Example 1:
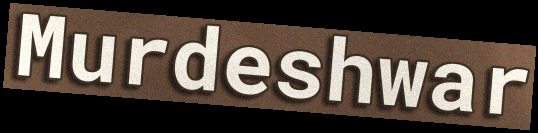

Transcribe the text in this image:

Murdeshwar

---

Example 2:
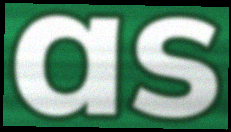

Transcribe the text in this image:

as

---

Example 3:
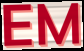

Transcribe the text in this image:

EM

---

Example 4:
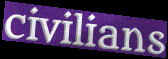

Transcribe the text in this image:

civilians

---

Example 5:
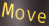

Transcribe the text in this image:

Move